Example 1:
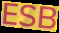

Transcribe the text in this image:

ESB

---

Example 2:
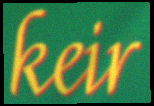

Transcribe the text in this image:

keir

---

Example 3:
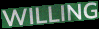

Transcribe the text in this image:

WILLING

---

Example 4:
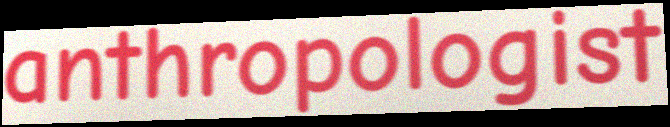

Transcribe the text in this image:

anthropologist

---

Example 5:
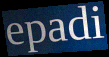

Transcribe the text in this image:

epadi